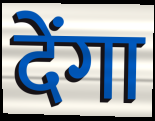
देंगा